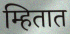
म्हितात